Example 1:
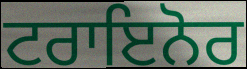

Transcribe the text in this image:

ਟਰਾਇਨੋਰ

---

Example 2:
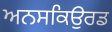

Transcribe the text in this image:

ਅਨਸਕਿਉਰਡ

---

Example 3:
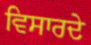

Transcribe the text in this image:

ਵਿਸਾਰਦੇ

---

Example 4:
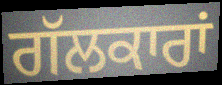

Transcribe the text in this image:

ਗੱਲਕਾਰਾਂ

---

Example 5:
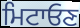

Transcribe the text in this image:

ਮਿਟਾਓਣ